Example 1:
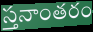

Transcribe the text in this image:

స్తనాంతరం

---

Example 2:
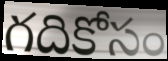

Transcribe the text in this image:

గదికోసం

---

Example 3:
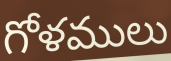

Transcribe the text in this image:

గోళములు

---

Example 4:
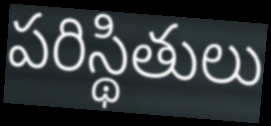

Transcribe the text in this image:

పరిస్థితులు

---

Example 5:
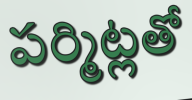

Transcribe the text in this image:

పర్మిట్లతో